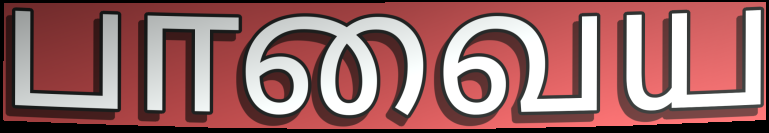
பாவைய